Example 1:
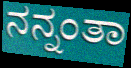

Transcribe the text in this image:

ನನ್ನಂತಾ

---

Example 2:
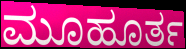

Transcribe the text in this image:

ಮೂಹೂರ್ತ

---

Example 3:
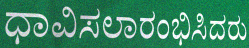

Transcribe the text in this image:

ಧಾವಿಸಲಾರಂಭಿಸಿದರು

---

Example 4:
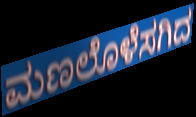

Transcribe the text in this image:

ಮಣಲೊಳೆಸಗಿದ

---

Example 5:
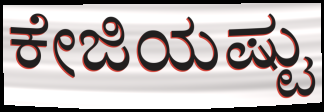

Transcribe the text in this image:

ಕೇಜಿಯಷ್ಟು